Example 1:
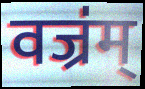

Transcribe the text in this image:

वज्र॑म्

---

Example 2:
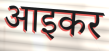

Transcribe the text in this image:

आइकर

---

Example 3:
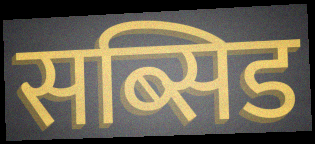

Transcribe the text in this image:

सब्सिड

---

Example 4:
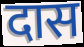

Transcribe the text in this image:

दास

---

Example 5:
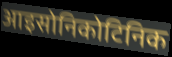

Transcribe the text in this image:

आइसोनिकोटिनिक